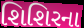
શિશિરના